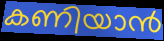
കണിയാൻ